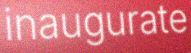
inaugurate